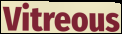
Vitreous